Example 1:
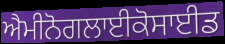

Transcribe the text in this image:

ਐਮੀਨੋਗਲਾਈਕੋਸਾਈਡ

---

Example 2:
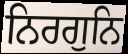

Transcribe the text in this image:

ਨਿਰਗੁਨਿ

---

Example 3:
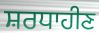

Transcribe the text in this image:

ਸ਼ਰਧਾਹੀਣ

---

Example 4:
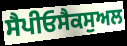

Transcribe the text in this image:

ਸੈਪੀਓਸੈਕਸੁਅਲ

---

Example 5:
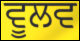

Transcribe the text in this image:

ਵੂਲਵ